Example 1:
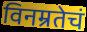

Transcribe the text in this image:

विनम्रतेचं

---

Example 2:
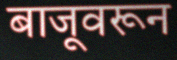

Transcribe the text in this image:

बाजूवरून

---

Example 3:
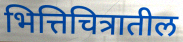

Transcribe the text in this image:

भित्तिचित्रातील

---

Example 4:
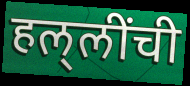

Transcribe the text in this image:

हल्लींची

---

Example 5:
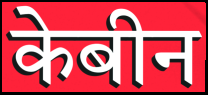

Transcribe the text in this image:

केबीन